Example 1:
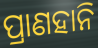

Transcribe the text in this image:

ପ୍ରାଣହାନି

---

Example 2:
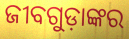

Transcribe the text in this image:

ଜୀବଗୁଡ଼ାଙ୍କର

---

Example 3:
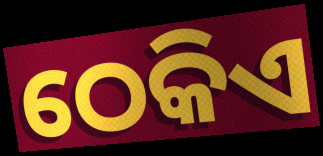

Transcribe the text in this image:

ଠେକିଏ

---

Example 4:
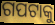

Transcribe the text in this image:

ଗପଟାକୁ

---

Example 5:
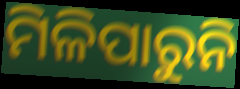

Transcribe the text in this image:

ମିଳିପାରୁନି